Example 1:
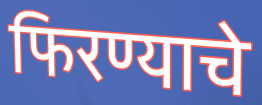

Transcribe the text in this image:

फिरण्याचे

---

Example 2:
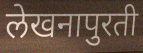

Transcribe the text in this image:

लेखनापुरती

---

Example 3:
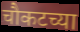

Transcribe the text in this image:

चौकटच्या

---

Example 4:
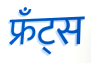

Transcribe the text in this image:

फ्रँट्स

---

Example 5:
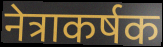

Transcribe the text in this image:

नेत्राकर्षक